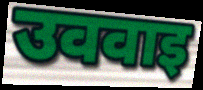
उववाइ